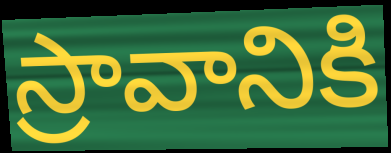
స్రావానికి